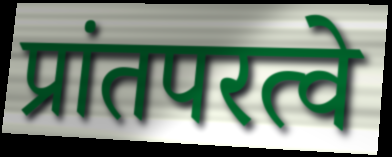
प्रांतपरत्वे